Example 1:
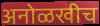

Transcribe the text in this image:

अनोळखीच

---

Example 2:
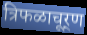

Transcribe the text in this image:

त्रिफळाचूर्ण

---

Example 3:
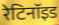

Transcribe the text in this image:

रेटिनॉइड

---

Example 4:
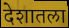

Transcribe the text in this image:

देशातला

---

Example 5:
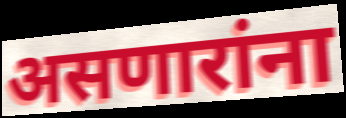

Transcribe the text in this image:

असणारांना